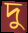
দু